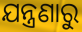
ଯନ୍ତ୍ରଣାରୁ